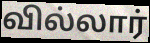
வில்லார்